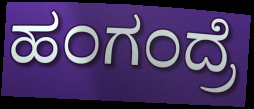
ಹಂಗಂದ್ರೆ